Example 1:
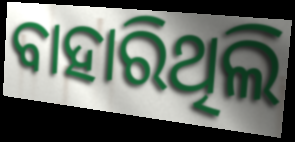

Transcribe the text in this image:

ବାହାରିଥିଲି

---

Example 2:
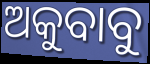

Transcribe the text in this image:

ଅକୁବାବୁ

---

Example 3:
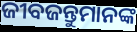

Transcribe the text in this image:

ଜୀବଜନ୍ତୁମାନଙ୍କ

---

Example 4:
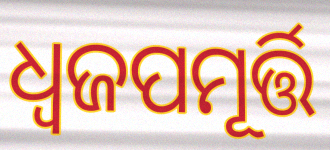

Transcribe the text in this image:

ଧ୍ୱଜପମୂର୍ତ୍ତି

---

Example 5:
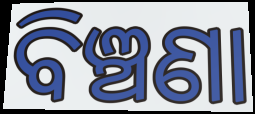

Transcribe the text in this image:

ବିଞ୍ଚଣା